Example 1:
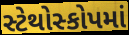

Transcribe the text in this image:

સ્ટેથોસ્કોપમાં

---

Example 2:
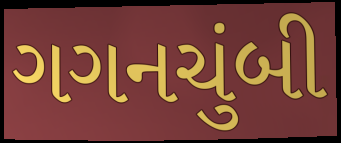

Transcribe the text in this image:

ગગનચુંબી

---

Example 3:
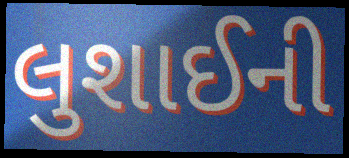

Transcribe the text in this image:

લુશાઈની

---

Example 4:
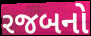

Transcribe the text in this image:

રજબનો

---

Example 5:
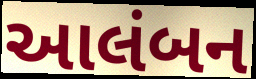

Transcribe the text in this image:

આલંબન